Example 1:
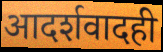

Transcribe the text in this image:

आदर्शवादही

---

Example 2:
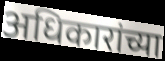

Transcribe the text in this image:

अधिकारांच्या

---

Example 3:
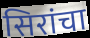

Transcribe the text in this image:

सिरांचा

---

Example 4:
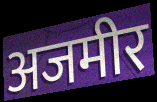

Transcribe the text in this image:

अजमीर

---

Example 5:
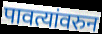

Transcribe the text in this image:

पावत्यांवरुन